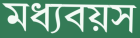
মধ্যবয়স